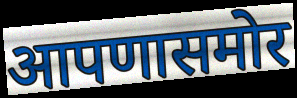
आपणासमोर